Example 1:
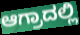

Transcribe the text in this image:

ಆಗ್ರಾದಲ್ಲಿ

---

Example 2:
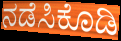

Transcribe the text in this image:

ನಡೆಸಿಕೊಡಿ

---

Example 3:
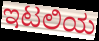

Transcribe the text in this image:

ಇಟಲಿಯ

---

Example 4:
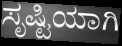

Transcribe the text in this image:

ಸೃಷ್ಟಿಯಾಗಿ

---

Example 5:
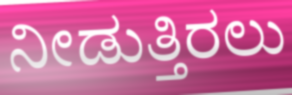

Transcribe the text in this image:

ನೀಡುತ್ತಿರಲು